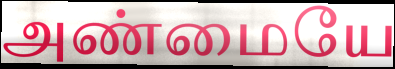
அண்மையே